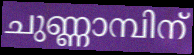
ചുണ്ണാമ്പിന്